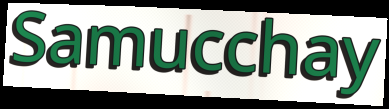
Samucchay